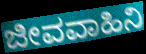
ಜೀವವಾಹಿನಿ